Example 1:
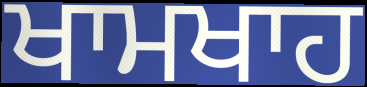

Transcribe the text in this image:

ਖਾਮਖਾਹ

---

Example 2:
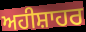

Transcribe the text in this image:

ਅਹੀਸ਼ਾਹਰ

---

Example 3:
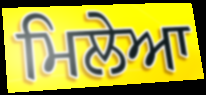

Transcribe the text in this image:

ਮਿਲੇਆ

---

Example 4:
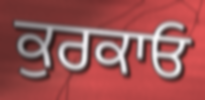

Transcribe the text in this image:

ਕੁਰਕਾਓ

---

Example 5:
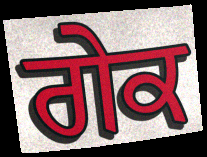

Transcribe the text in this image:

ਗੇਕ